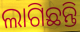
ଲାଗିଛନ୍ତି